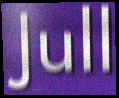
Jull